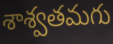
శాశ్వతమగు